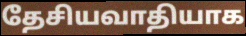
தேசியவாதியாக